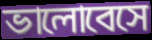
ভালোবেসে